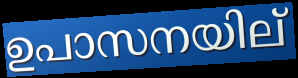
ഉപാസനയില്